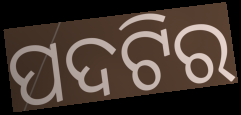
ପଦଟିର